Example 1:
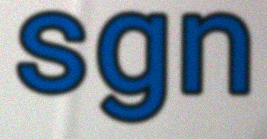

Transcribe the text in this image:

sgn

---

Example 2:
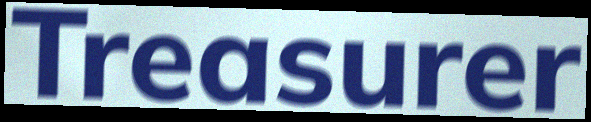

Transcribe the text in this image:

Treasurer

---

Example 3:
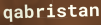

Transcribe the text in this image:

qabristan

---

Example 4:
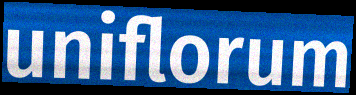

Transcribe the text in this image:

uniflorum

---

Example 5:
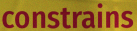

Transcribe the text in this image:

constrains